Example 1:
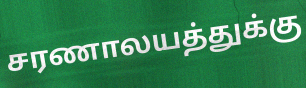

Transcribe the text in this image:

சரணாலயத்துக்கு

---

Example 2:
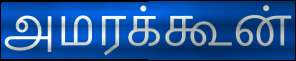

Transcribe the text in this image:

அமரக்கூன்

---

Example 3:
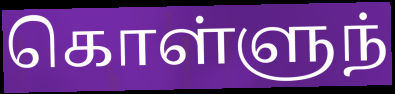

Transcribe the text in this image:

கொள்ளுந்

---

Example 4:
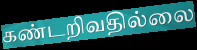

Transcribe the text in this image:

கண்டறிவதில்லை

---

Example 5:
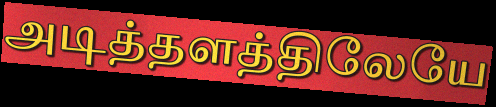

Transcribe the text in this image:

அடித்தளத்திலேயே